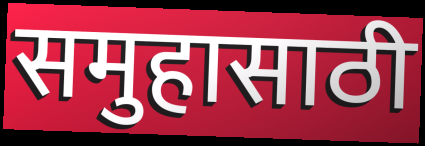
समुहासाठी